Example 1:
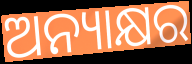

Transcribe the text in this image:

ଅନ୍ୟାକ୍ଷର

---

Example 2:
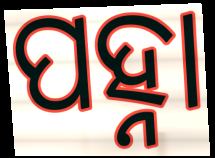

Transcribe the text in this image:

ପହ୍ନା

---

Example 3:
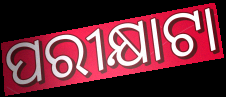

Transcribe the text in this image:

ପରୀକ୍ଷାଟା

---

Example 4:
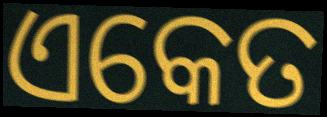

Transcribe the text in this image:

ଏକେତ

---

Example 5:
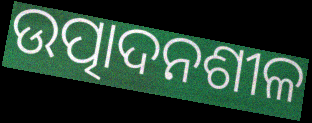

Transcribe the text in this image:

ଉତ୍ପାଦନଶୀଳ